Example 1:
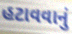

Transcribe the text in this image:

હટાવવાનું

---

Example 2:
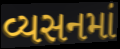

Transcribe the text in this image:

વ્યસનમાં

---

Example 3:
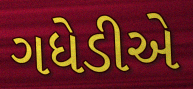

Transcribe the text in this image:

ગધેડીએ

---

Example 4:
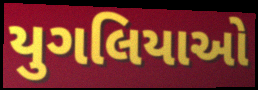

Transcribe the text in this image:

યુગલિયાઓ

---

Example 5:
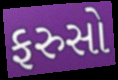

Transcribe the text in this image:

ફરુસો